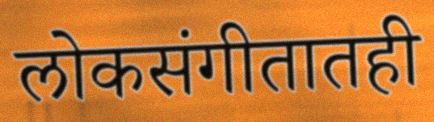
लोकसंगीतातही